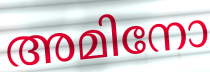
അമിനോ